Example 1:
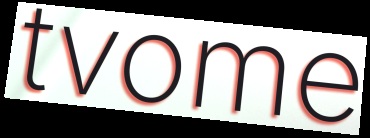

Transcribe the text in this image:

tvome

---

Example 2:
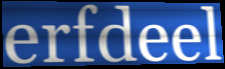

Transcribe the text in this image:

erfdeel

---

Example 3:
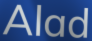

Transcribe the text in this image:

Alad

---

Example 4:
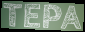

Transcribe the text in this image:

TEPA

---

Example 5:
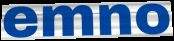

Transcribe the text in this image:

emno